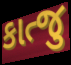
કાત્જુ